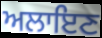
ਅਲਾਇਣ